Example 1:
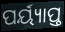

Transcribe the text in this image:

ପର୍ୟ୍ୟାପ୍ତ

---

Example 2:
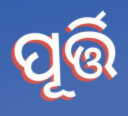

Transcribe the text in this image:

ପୂର୍ତ୍ତି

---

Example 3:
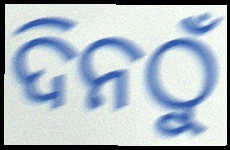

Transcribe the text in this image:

ଦିନଠୁଁ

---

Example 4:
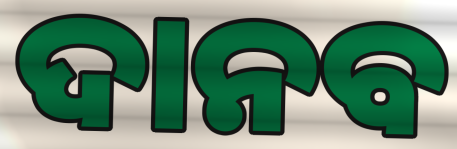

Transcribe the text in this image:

ଦାନବ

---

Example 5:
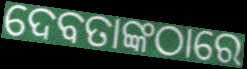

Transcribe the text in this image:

ଦେବତାଙ୍କଠାରେ